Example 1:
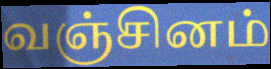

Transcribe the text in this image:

வஞ்சினம்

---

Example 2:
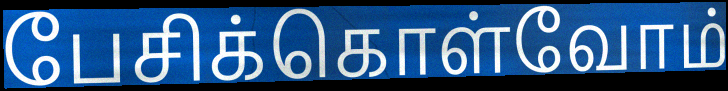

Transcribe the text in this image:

பேசிக்கொள்வோம்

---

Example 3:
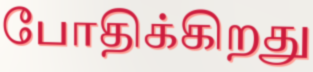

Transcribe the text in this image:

போதிக்கிறது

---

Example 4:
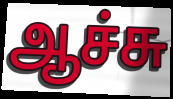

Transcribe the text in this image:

ஆச்சு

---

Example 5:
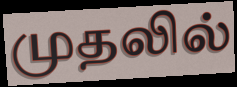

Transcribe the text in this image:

முதலில்